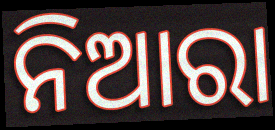
ନିଆରା